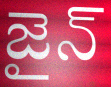
జైన్